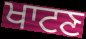
ਖਾਟਣ